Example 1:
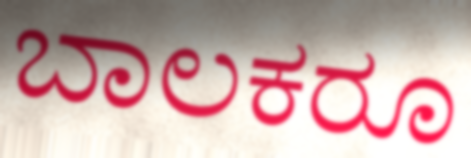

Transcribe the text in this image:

ಬಾಲಕರೂ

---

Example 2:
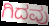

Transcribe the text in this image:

ಗಿದವು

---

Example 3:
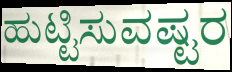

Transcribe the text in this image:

ಹುಟ್ಟಿಸುವಷ್ಟರ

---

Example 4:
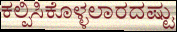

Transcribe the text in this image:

ಕಲ್ಪಿಸಿಕೊಳ್ಳಲಾರದಷ್ಟು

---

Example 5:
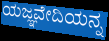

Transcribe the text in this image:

ಯಜ್ಞವೇದಿಯನ್ನ